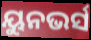
ୟୁନଭର୍ସ